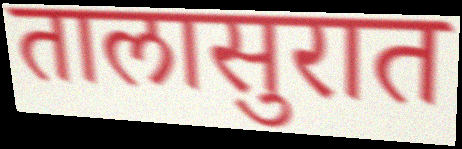
तालासुरात